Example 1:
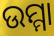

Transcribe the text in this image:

ଉମ୍ମା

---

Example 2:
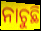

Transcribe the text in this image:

ନାଚୁଛି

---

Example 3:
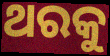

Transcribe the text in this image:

ଥରକୁ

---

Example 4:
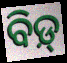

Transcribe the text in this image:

ବିଡ଼୍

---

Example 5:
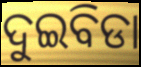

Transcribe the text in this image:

ଦୁଇବିଡା